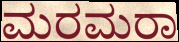
ಮರಮರಾ